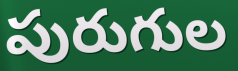
పురుగుల